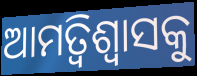
ଆମତ୍ବିଶ୍ୱାସକୁ